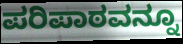
ಪರಿಪಾಠವನ್ನೂ